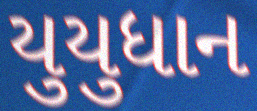
યુયુધાન